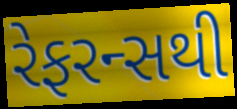
રેફરન્સથી